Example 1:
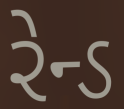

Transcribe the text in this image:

રેન્ડ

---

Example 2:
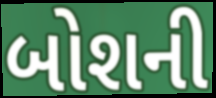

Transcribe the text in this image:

બોશની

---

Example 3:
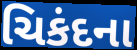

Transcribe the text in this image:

ચિકંદના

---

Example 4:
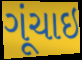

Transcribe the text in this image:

ગૂંચાઇ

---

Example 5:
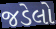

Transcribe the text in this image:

જડેલો